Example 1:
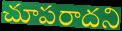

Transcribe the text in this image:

చూపరాదని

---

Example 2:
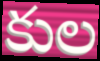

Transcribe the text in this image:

కుల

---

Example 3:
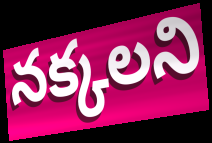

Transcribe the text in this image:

నక్కలని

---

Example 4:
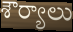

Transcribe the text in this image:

శౌర్యాలు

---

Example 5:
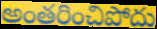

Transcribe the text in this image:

అంతరించిపోదు